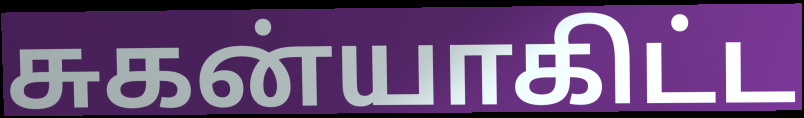
சுகன்யாகிட்ட